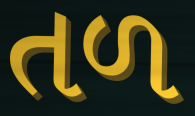
તળ